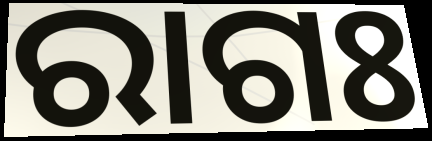
ରାଗଃ